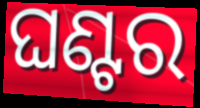
ଘଣ୍ଟର